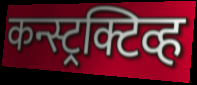
कन्स्ट्रक्टिव्ह